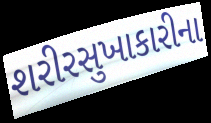
શરીરસુખાકારીના